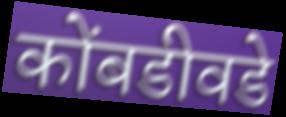
कोंबडीवडे